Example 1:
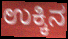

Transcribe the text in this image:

ಉಕ್ಕಿನ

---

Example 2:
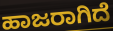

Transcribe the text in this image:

ಹಾಜರಾಗಿದೆ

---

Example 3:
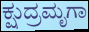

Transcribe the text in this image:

ಕ್ಷುದ್ರಮೃಗಾ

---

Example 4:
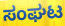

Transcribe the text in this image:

ಸಂಘಟ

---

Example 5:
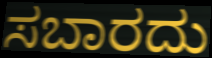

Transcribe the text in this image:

ಸಬಾರದು